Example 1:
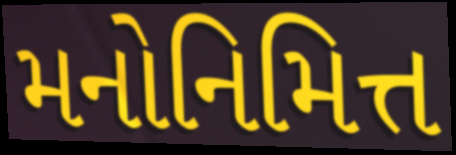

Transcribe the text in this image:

મનોનિમિત્ત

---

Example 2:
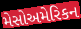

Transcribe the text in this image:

મેસોઅમેરિકન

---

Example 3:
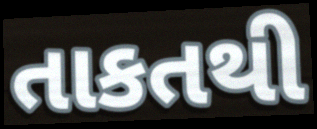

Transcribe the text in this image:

તાકતથી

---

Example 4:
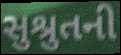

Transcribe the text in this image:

સુશ્રુતની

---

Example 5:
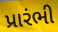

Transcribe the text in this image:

પ્રારંભી